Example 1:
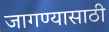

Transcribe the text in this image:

जागण्यासाठी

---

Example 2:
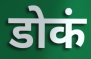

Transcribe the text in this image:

डोकं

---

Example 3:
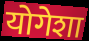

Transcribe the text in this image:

योगेशा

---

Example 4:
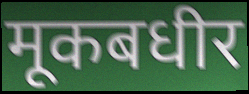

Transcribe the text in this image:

मूकबधीर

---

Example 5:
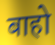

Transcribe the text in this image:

बाहो